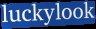
luckylook